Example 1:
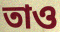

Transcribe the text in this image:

তাও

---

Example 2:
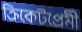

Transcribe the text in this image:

ক্রিকেটপ্রেমী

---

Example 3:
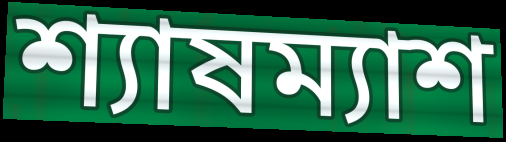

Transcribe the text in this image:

শ্যাষম্যাশ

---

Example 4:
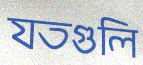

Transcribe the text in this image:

যতগুলি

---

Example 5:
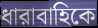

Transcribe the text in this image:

ধারাবাহিকে